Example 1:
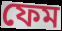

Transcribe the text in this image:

ফেম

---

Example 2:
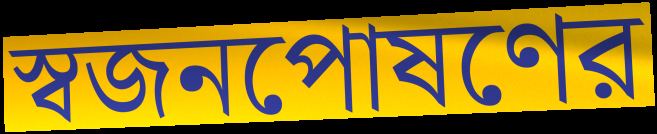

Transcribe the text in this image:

স্বজনপোষণের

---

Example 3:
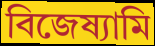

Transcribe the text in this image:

বিজেষ্যামি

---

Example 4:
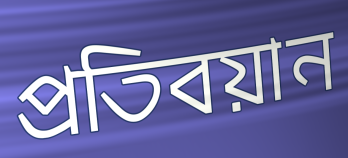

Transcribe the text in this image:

প্রতিবয়ান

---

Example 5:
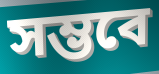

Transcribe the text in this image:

সম্ভবে